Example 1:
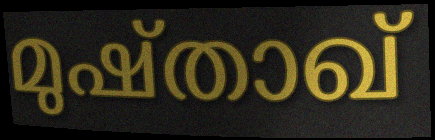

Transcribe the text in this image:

മുഷ്താഖ്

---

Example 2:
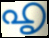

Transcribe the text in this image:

ഹൃ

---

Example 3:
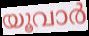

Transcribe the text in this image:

യൂവാർ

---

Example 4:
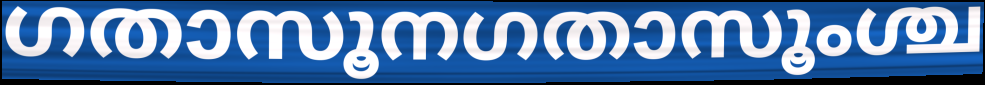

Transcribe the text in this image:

ഗതാസൂനഗതാസൂംശ്ച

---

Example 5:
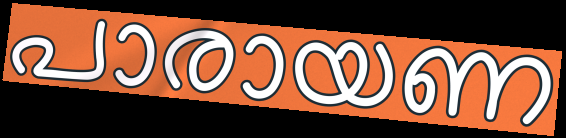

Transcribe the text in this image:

പാരായണ